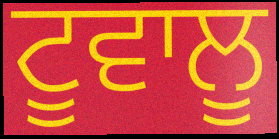
ਟੂਵਾਲੂ